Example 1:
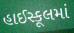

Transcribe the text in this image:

હાઈસ્કૂલમાં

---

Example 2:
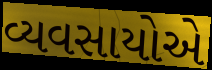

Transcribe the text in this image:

વ્યવસાયોએ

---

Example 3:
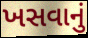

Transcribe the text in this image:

ખસવાનું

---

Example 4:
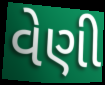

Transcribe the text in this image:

વેણી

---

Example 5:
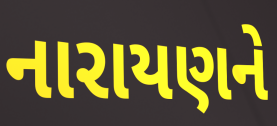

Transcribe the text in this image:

નારાયણને